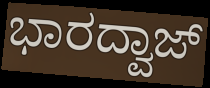
ಭಾರದ್ವಾಜ್